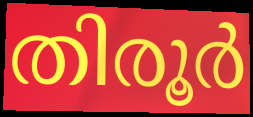
തിരൂർ